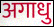
अगाधु